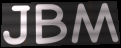
JBM